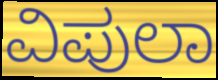
ವಿಪುಲಾ